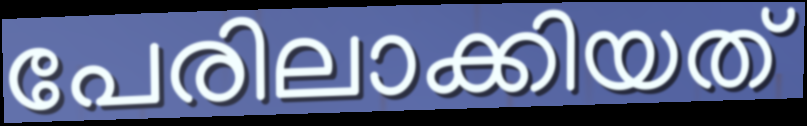
പേരിലാക്കിയത്